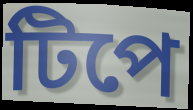
টিপে